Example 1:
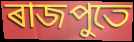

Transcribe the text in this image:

ৰাজপুতে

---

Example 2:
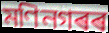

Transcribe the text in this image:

মণিনগৰৰ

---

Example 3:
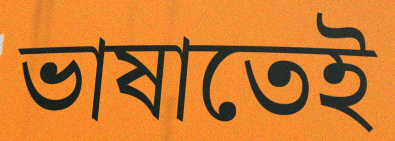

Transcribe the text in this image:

ভাষাতেই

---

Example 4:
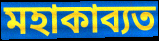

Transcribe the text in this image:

মহাকাব্যত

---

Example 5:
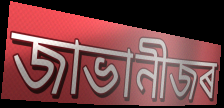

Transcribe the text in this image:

জাভানীজৰ